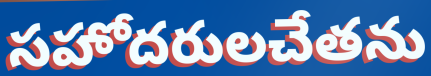
సహోదరులచేతను